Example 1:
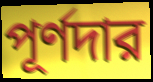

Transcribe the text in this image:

পূর্ণদার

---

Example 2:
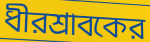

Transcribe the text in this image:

ধীরশ্রাবকের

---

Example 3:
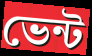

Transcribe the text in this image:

ভেন্ট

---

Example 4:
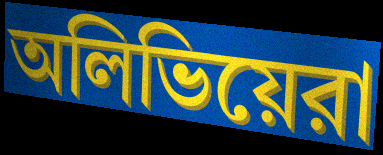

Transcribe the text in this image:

অলিভিয়েরা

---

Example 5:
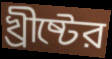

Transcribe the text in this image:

খ্রীষ্টের